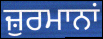
ਜ਼ੁਰਮਾਨਾਂ